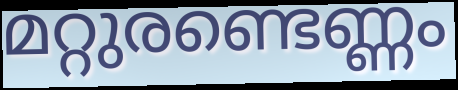
മറ്റുരണ്ടെണ്ണം